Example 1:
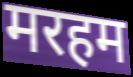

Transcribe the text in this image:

मरहम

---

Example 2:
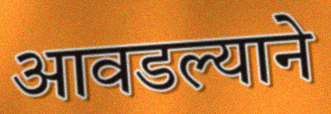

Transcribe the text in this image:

आवडल्याने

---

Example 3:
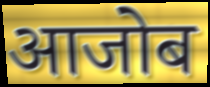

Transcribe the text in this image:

आजोब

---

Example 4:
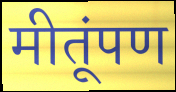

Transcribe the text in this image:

मीतूंपण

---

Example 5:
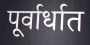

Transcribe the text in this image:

पूर्वार्धात